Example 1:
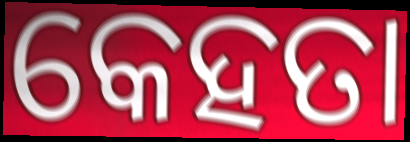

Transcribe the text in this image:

କେହତା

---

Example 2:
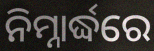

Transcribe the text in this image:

ନିମ୍ନାର୍ଦ୍ଧରେ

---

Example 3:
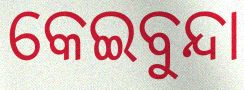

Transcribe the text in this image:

କେଇବୁନ୍ଦା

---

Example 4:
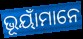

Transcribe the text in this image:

ଭୂୟାଁମାନେ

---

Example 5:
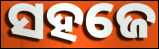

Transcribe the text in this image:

ସହଜେ